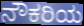
ನೌಕರಿಯ